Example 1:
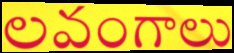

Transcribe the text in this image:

లవంగాలు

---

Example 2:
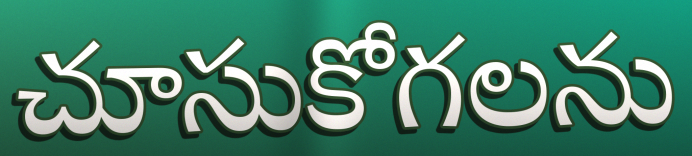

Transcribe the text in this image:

చూసుకోగలను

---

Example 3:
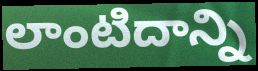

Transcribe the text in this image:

లాంటిదాన్ని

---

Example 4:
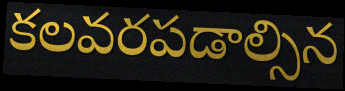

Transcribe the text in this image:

కలవరపడాల్సిన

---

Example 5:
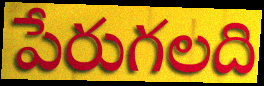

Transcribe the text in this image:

పేరుగలది